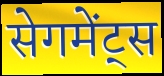
सेगमेंट्स